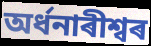
অৰ্ধনাৰীশ্বৰ